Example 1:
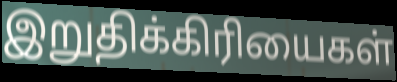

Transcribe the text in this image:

இறுதிக்கிரியைகள்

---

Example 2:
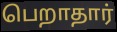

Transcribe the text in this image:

பெறாதார்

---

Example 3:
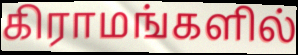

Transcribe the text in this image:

கிராமங்களில்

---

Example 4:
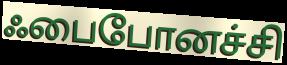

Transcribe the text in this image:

ஃபைபோனச்சி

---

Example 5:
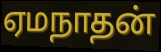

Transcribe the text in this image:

ஏமநாதன்